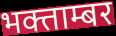
भक्ताम्बर